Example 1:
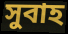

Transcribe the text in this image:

সুবাহ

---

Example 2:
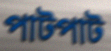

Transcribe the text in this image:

পাটপাট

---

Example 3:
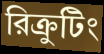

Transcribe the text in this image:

রিক্রুটিং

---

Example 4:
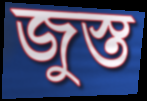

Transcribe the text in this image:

জুস্ত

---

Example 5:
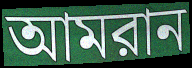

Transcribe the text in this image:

আমরান